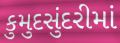
કુમુદસુંદરીમાં